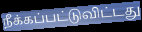
நீக்கப்பட்டுவிட்டது